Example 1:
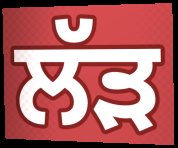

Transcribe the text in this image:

ਲੱੜ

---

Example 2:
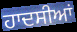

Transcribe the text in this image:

ਹਾਦਸੀਆਂ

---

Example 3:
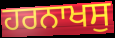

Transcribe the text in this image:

ਹਰਨਾਖਸੁ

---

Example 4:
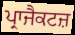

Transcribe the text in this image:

ਪ੍ਰਾਜੈਕਟਜ਼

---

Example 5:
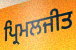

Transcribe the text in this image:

ਪ੍ਰਿਮਲਜੀਤ